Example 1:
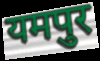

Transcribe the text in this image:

यमपुर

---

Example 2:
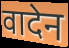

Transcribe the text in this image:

वादेन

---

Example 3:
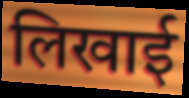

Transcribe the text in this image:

लिखाई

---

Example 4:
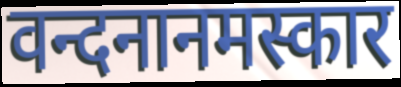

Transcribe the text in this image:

वन्दनानमस्कार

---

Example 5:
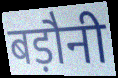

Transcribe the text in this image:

बड़ौनी